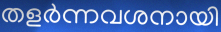
തളർന്നവശനായി